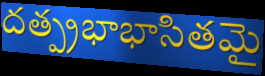
దత్ప్రభాభాసితమై